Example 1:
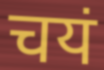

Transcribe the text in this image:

चयं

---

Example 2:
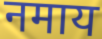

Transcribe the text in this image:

नमाय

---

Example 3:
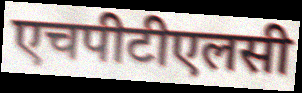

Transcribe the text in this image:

एचपीटीएलसी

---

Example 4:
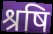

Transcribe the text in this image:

श्रषि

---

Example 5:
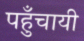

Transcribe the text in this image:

पहुँचायी